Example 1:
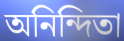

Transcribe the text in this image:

অনিন্দিতা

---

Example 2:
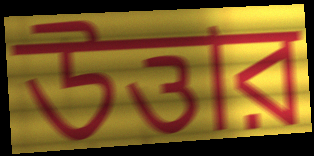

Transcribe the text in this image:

উত্তার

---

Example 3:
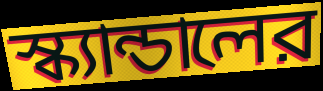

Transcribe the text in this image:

স্ক্যান্ডালের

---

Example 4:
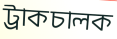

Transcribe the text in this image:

ট্রাকচালক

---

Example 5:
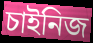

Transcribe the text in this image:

চাইনিজ